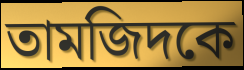
তামজিদকে